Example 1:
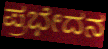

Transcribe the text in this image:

ಪ್ರಭೇದನ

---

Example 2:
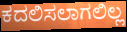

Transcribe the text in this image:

ಕದಲಿಸಲಾಗಲಿಲ್ಲ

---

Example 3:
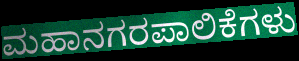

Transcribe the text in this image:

ಮಹಾನಗರಪಾಲಿಕೆಗಳು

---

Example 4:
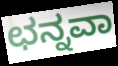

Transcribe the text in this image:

ಛನ್ನವಾ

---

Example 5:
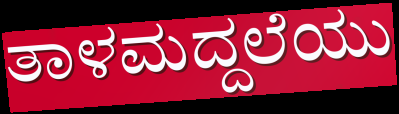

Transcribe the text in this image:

ತಾಳಮದ್ದಲೆಯು